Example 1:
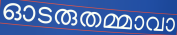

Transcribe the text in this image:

ഓടരുതമ്മാവാ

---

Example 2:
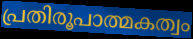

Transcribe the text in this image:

പ്രതിരൂപാത്മകത്വം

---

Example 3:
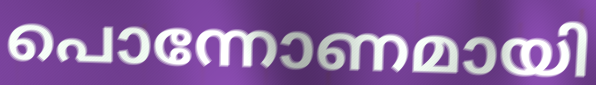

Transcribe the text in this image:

പൊന്നോണമായി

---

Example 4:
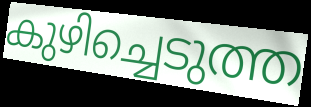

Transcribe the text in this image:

കുഴിച്ചെടുത്ത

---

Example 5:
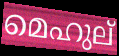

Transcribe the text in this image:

മെഹുല്